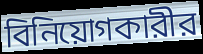
বিনিয়োগকারীর